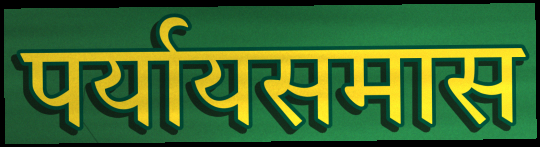
पर्यायसमास